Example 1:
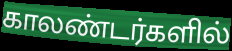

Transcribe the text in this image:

காலண்டர்களில்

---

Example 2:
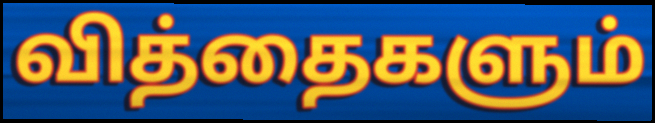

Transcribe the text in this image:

வித்தைகளும்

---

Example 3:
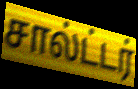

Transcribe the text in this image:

சால்ட்டர்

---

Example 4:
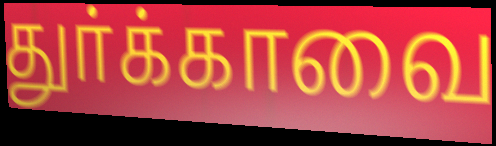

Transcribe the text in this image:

துர்க்காவை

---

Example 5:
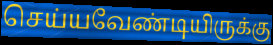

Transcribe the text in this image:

செய்யவேண்டியிருக்கு